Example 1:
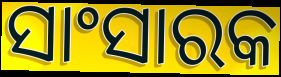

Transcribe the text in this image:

ସାଂସାରକ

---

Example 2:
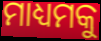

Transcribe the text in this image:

ମାଧ୍ୟମକୁ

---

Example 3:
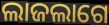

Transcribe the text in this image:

ଲାଜଲାଗେ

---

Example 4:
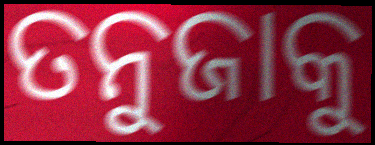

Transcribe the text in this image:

ତନୁଜାକୁ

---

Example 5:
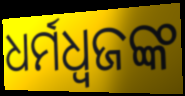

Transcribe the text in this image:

ଧର୍ମଧ୍ୱଜଙ୍କ